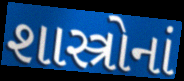
શાસ્ત્રોનાં